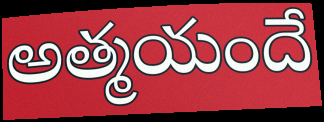
అత్మయందే